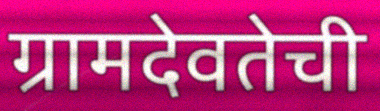
ग्रामदेवतेची